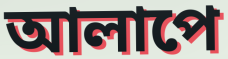
আলাপে